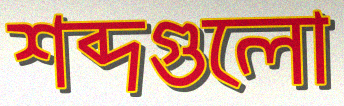
শব্দগুলো